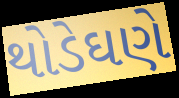
થોડેઘણે